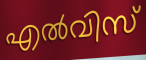
എൽവിസ്